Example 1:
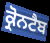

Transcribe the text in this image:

ਕ੍ਰੋਨਟੈਬ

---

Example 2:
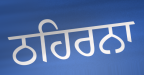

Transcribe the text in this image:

ਠਹਿਰਨਾ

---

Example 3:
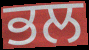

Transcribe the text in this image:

ਭਲ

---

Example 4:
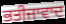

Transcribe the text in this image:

ਭਤੀਜਾਵਾਦ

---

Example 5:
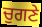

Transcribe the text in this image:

ਚੁਗਣੇ